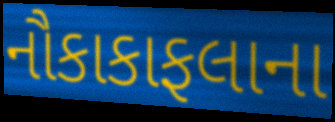
નૌકાકાફલાના